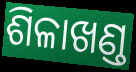
ଶିଳାଖଣ୍ଡ